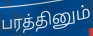
பரத்தினும்